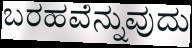
ಬರಹವೆನ್ನುವುದು